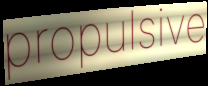
propulsive